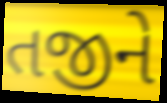
તજીને